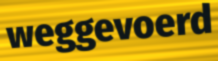
weggevoerd